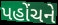
પહોંચને